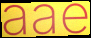
aae